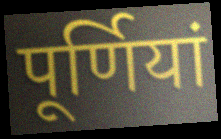
पूर्णियां